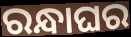
ରନ୍ଧାଘର